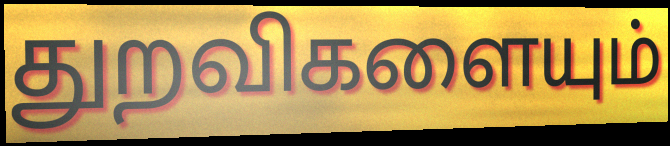
துறவிகளையும்